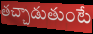
తచ్చాడుతుంటే